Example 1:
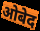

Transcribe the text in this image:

ओबेद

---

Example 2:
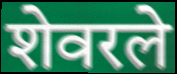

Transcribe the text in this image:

शेवरले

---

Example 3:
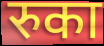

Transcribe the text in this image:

रुका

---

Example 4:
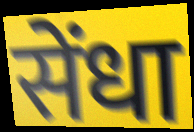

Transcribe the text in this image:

सेंधा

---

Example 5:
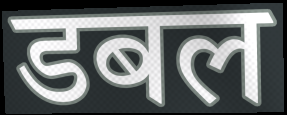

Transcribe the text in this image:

डबल